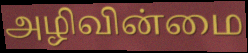
அழிவின்மை